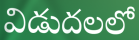
విడుదలలో